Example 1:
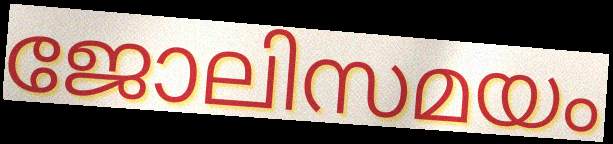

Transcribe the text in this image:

ജോലിസമയം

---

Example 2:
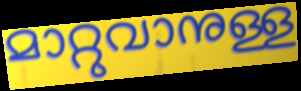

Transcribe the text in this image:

മാറ്റുവാനുള്ള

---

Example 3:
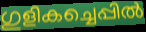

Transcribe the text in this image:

ഗുളികച്ചെപ്പിൽ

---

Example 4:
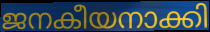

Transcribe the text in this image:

ജനകീയനാക്കി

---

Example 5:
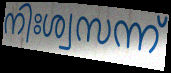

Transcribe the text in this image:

നിഃശ്വസന്ന്